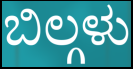
ಬಿಲ್ಗಳು